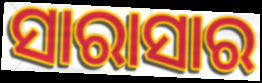
ସାରାସାର